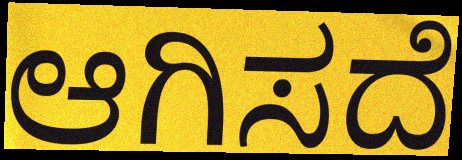
ಆಗಿಸದೆ